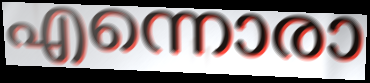
എന്നൊരാ